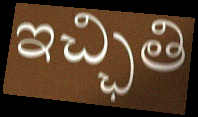
ఇచ్ఛితి